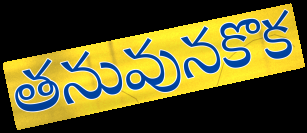
తనువునకొక